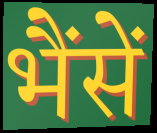
भैंसें